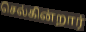
செல்கின்றார்